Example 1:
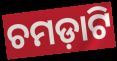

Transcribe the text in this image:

ଚମଡ଼ାଟି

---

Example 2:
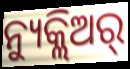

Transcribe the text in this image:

ନ୍ୟୁକ୍ଲିଅର୍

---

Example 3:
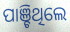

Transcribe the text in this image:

ପାଞ୍ଚିଥିଲେ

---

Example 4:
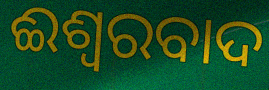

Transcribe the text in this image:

ଈଶ୍ବରବାଦ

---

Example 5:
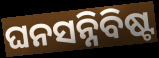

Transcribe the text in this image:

ଘନସନ୍ନିବିଷ୍ଟ